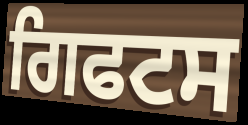
ਗਿਫਟਸ